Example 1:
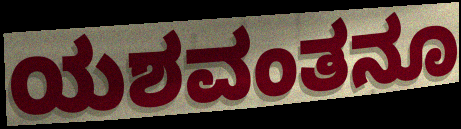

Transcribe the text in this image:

ಯಶವಂತನೂ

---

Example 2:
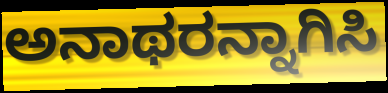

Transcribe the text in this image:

ಅನಾಥರನ್ನಾಗಿಸಿ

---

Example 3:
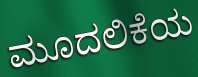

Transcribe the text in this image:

ಮೂದಲಿಕೆಯ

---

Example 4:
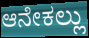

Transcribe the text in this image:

ಆನೇಕಲ್ಲು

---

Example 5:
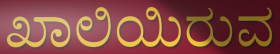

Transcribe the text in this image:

ಖಾಲಿಯಿರುವ